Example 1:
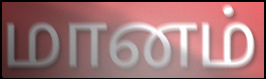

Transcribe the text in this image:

மானம்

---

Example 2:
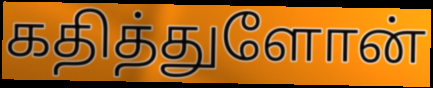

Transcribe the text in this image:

கதித்துளோன்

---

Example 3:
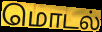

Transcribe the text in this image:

மொடல்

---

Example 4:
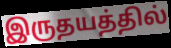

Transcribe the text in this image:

இருதயத்தில்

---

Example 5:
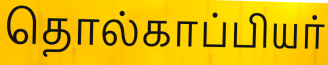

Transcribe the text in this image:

தொல்காப்பியர்